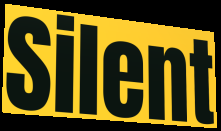
Silent